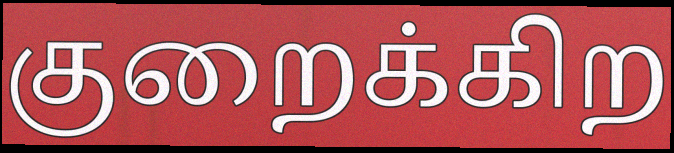
குறைக்கிற